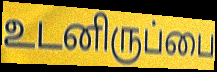
உடனிருப்பை